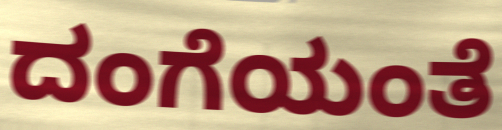
ದಂಗೆಯಂತೆ